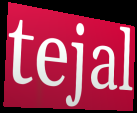
tejal